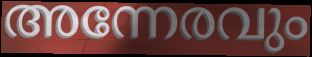
അന്നേരവും